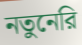
নতুনেরি